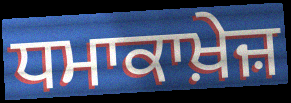
ਧਮਾਕਾਖ਼ੇਜ਼